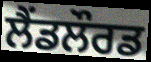
ਲੈਂਡਲੌਰਡ